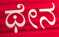
ಥೇನ